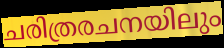
ചരിത്രരചനയിലും